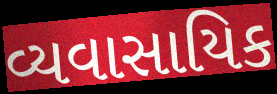
વ્યવાસાયિક